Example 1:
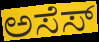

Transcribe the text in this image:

ಅಸೆಸ್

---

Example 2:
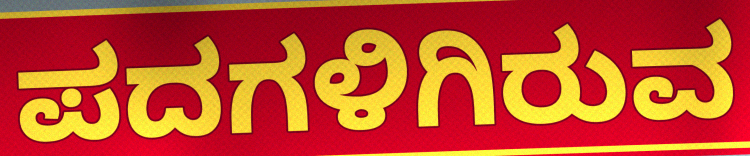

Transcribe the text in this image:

ಪದಗಳಿಗಿರುವ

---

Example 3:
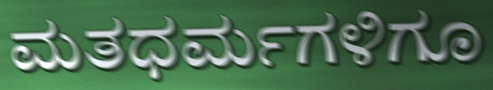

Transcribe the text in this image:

ಮತಧರ್ಮಗಳಿಗೂ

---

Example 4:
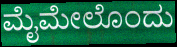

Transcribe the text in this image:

ಮೈಮೇಲೊಂದು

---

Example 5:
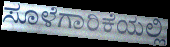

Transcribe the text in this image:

ಸೂಳೆಗಾರಿಕೆಯಲ್ಲಿ